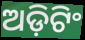
ଅଡ଼ିଟିଂ